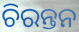
ଚିରନ୍ତନ